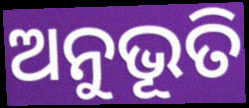
ଅନୁଭୂତି